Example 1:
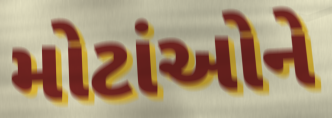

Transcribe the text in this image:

મોટાંઓને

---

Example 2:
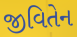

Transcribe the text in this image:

જીવિતેન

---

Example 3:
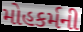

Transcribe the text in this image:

મોહકર્મની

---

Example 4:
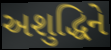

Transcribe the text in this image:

અશુદ્ધિને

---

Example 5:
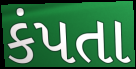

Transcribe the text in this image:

કંપતા